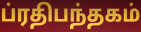
ப்ரதிபந்தகம்